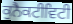
ਕੁਨੈਕਟੀਵਿਟੀ